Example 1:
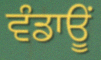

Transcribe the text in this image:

ਵੰਡਾਊਂ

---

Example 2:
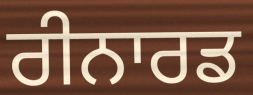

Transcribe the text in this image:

ਰੀਨਾਰਡ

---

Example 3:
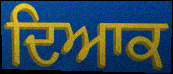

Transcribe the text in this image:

ਦਿਆਕ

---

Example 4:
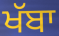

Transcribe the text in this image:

ਖੱਬਾ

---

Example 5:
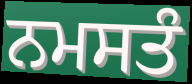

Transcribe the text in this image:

ਨਮਸਤੰ